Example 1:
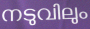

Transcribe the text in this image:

നടുവിലും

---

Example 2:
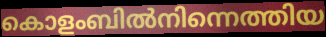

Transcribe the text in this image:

കൊളംബിൽനിന്നെത്തിയ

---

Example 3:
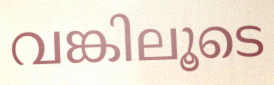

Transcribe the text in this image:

വങ്കിലൂടെ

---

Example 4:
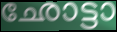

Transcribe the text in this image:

ഛോട്ടാ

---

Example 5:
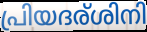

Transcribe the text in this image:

പ്രിയദര്ശിനി